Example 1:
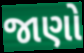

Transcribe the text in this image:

જાણો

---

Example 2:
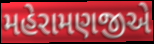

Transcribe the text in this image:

મહેરામણજીએ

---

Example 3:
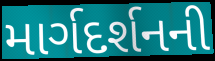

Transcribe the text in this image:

માર્ગદર્શનની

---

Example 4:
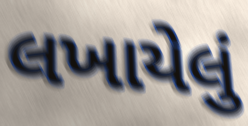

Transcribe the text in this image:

લખાયેલું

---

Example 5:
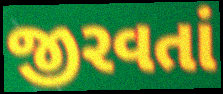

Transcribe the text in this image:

જીરવતાં